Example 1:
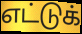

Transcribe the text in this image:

எட்டுக்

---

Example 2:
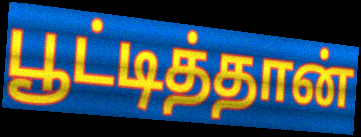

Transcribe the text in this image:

பூட்டித்தான்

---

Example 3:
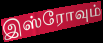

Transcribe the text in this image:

இஸ்ரோவும்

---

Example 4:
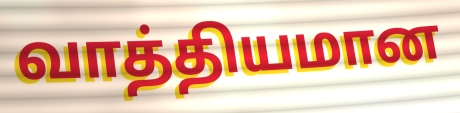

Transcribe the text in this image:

வாத்தியமான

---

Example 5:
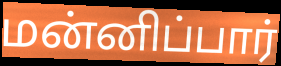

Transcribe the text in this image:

மன்னிப்பார்